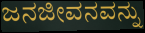
ಜನಜೀವನವನ್ನು